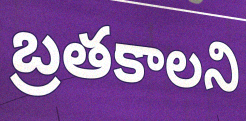
బ్రతకాలని